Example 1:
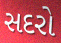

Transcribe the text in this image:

સદરો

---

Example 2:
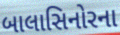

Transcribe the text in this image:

બાલાસિનોરના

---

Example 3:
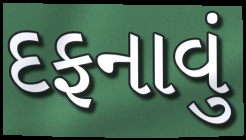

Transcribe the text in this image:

દફનાવું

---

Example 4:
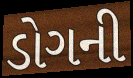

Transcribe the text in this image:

ડોગની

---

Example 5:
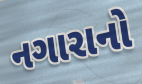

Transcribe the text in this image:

નગારાનો